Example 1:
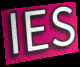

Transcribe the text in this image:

IES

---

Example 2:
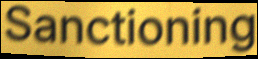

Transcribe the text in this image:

Sanctioning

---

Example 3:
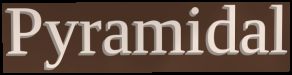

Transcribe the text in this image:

Pyramidal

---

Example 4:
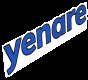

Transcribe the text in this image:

yenare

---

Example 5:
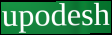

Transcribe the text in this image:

upodesh